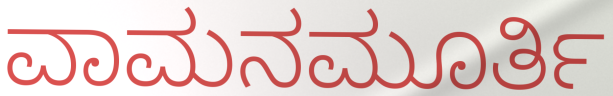
ವಾಮನಮೂರ್ತಿ